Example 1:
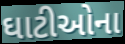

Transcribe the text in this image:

ઘાટીઓના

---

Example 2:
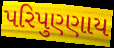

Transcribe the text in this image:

પરિપુણ્ણાય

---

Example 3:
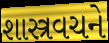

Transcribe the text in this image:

શાસ્ત્રવચને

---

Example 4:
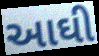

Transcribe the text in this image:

આઘી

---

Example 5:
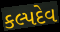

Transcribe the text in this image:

કલ્પદેવ